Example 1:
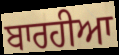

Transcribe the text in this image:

ਬਾਰਹੀਆ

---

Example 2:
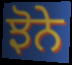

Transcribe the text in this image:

ਝੋਨੇ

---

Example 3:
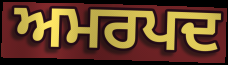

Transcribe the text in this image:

ਅਮਰਪਦ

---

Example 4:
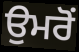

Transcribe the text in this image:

ਉਮਰੋਂ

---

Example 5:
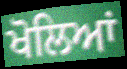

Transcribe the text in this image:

ਖੋਲਿਆਂ